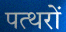
पत्‍थरों